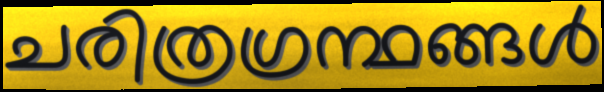
ചരിത്രഗ്രന്ഥങ്ങൾ